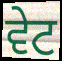
ਵੇਟ